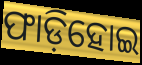
ଫାଡ଼ିହୋଇ